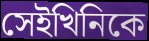
সেইখিনিকে